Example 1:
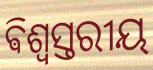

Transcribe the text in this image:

ଵିଶ୍ୱସ୍ତରୀୟ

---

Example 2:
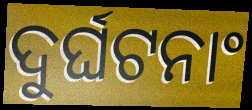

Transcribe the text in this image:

ଦୁର୍ଘଟନାଂ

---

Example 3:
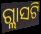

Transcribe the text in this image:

ଗ୍ଲାସଟି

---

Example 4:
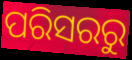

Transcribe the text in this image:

ପରିସରରୁ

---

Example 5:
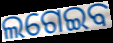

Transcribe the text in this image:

ଲଗେଇବ